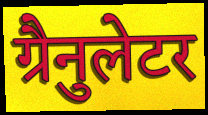
ग्रैनुलेटर